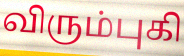
விரும்புகி